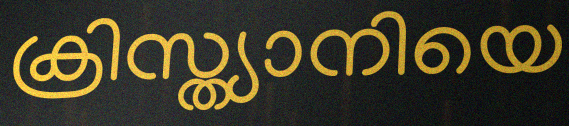
ക്രിസ്ത്യാനിയെ